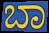
ಬಾ